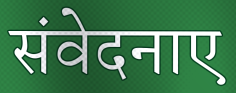
संवेदनाए